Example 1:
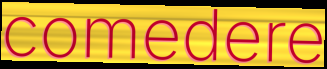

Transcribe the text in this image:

comedere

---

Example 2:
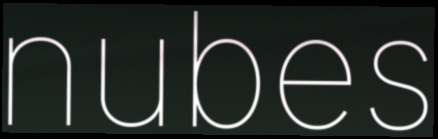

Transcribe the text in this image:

nubes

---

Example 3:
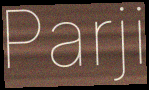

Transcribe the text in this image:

Parji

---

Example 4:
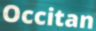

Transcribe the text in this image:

Occitan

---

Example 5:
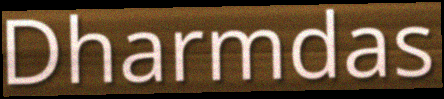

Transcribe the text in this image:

Dharmdas